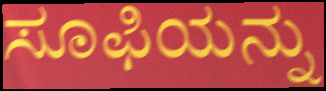
ಸೂಫಿಯನ್ನು